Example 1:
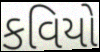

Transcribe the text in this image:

કવિયો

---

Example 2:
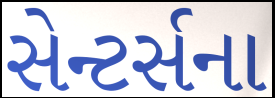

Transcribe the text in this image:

સેન્ટર્સના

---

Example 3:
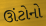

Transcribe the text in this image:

ઊંટોનો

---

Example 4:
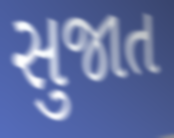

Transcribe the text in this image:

સુજાત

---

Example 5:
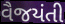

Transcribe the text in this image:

વૈજયંતી